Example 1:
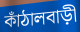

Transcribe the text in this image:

কাঁঠালবাড়ী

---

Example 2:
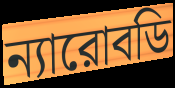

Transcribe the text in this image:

ন্যারোবডি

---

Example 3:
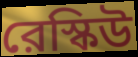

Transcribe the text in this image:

রেস্কিউ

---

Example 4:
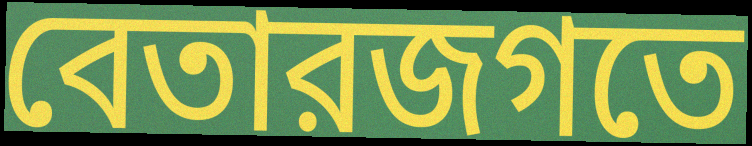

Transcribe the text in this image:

বেতারজগতে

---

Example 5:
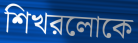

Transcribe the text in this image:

শিখরলোকে